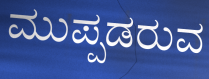
ಮುಪ್ಪಡರುವ